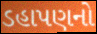
ડહાપણનો